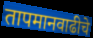
तापमानवाढीचे